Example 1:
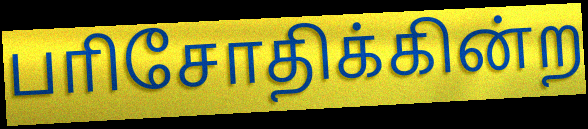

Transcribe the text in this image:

பரிசோதிக்கின்ற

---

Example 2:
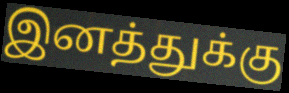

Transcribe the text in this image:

இனத்துக்கு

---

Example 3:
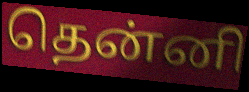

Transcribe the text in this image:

தென்னி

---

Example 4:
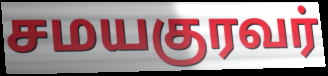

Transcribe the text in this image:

சமயகுரவர்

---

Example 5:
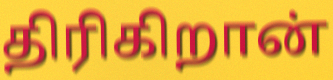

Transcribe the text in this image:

திரிகிறான்